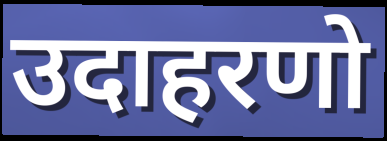
उदाहरणो